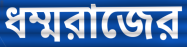
ধম্মরাজের